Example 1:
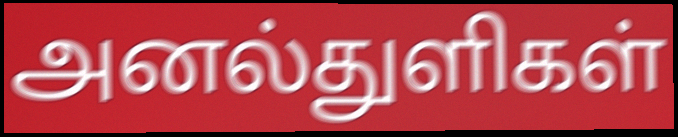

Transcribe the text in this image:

அனல்துளிகள்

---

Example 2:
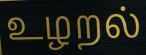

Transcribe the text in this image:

உழறல்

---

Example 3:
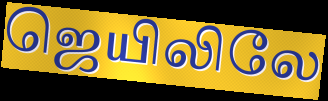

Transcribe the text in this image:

ஜெயிலிலே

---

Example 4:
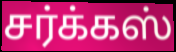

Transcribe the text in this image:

சர்க்கஸ்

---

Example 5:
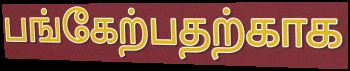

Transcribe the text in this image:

பங்கேற்பதற்காக